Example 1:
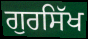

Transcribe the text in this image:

ਗੁਰਸਿੱਖ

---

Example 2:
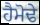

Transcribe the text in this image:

ਹੈਮੋਢੇ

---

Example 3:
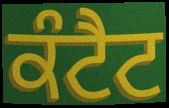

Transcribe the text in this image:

ਕੰਟੈਟ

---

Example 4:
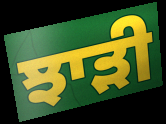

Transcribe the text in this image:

ਝਾੜੀ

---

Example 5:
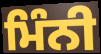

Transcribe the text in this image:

ਮਿੰਨੀ